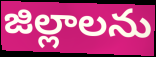
జిల్లాలను